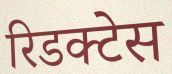
रिडक्टेस